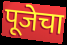
पूजेचा